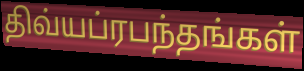
திவ்யப்ரபந்தங்கள்